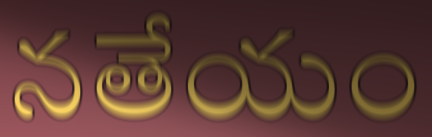
నతేయం